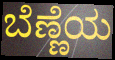
ಬೆಣ್ಣೆಯ